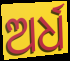
ଅର୍ଧ